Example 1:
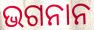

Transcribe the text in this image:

ଭଗନାନ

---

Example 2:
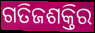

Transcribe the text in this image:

ଗତିଜଶକ୍ତିର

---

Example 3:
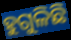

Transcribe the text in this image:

ହୁଗୁଳିଛି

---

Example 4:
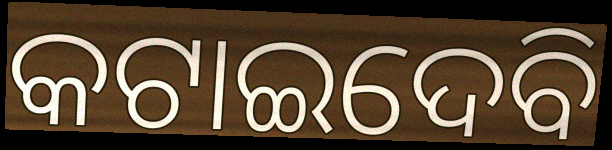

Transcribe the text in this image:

କଟାଇଦେବି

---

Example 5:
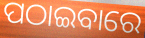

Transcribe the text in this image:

ପଠାଇବାରେ